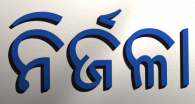
ନିର୍ଜଳା